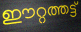
ഈറ്റത്തട്ട്